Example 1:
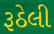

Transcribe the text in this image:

રૂઠેલી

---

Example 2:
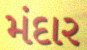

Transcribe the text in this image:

મંદાર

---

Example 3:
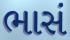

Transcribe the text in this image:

ભાસં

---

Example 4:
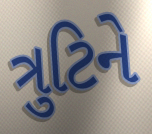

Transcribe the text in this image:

ત્રુટિને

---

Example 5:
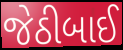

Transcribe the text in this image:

જેઠીબાઈ